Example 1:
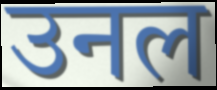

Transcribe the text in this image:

उनल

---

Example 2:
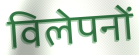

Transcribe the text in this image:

विलेपनों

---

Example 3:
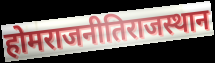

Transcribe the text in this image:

होमराजनीतिराजस्थान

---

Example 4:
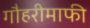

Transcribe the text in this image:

गौहरीमाफी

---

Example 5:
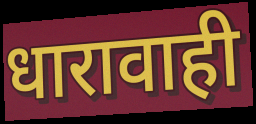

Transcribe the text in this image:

धारावाही